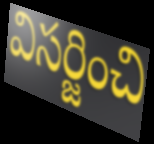
విసర్జించి